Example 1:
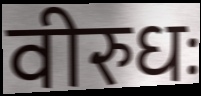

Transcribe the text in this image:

वीरुधः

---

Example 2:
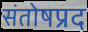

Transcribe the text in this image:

संतोषप्रद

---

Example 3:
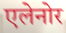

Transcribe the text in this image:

एलेनोर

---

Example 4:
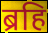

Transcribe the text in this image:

ब्रहि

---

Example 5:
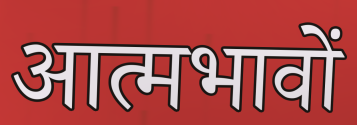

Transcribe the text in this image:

आत्मभावों